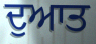
ਦੁਆਤ